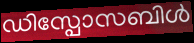
ഡിസ്പോസബിൾ